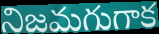
నిజమగుగాక